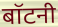
बॉटनी